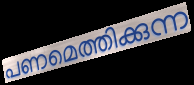
പണമെത്തിക്കുന്ന